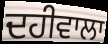
ਦਹੀਵਾਲਾ